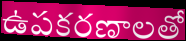
ఉపకరణాలతో